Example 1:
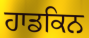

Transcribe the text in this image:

ਹਾਡਕਿਨ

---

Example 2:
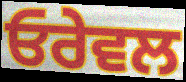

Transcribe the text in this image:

ਓਰੇਵਲ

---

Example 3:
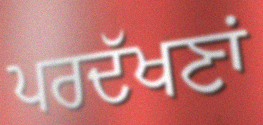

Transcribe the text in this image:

ਪਰਦੱਖਣਾਂ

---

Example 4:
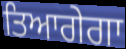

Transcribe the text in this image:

ਤਿਆਗੇਗਾ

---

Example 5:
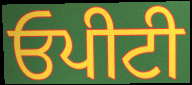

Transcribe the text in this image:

ਓਪੀਟੀ